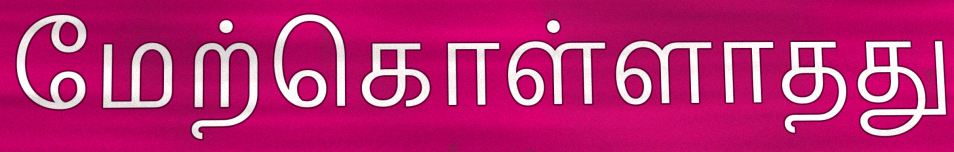
மேற்கொள்ளாதது